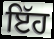
ਇੱਹ